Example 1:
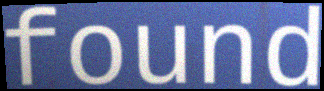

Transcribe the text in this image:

found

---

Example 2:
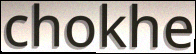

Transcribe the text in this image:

chokhe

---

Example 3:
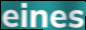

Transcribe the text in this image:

eines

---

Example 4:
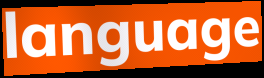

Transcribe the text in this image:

language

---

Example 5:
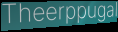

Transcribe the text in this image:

Theerppugal